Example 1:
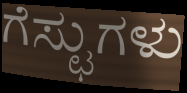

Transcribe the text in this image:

ಗೆಸ್ಟುಗಳು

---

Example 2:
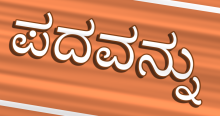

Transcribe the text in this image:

ಪದವನ್ನು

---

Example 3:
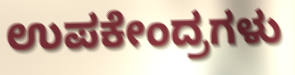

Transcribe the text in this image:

ಉಪಕೇಂದ್ರಗಳು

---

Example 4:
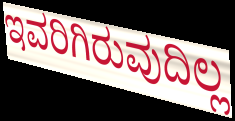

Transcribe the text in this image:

ಇವರಿಗಿರುವುದಿಲ್ಲ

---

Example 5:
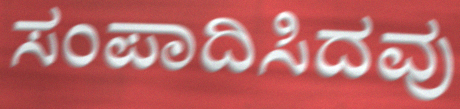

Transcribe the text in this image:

ಸಂಪಾದಿಸಿದವು